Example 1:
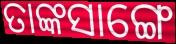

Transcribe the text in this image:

ତାଙ୍କସାଙ୍ଗେ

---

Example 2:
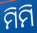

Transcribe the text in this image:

ମିମି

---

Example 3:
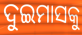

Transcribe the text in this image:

ଦୁଇମାସକୁ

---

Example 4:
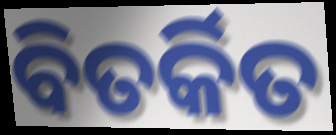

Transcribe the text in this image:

ବିତର୍କିତ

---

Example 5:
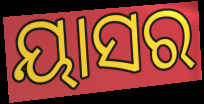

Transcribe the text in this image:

ୟାସର